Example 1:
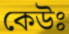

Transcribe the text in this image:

কেউঃ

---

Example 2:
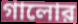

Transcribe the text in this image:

গালোর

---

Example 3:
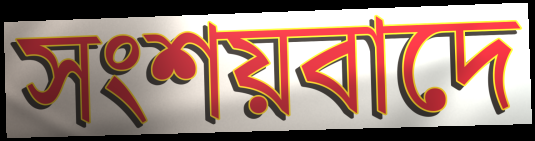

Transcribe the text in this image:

সংশয়বাদে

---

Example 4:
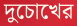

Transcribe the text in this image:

দুচোখের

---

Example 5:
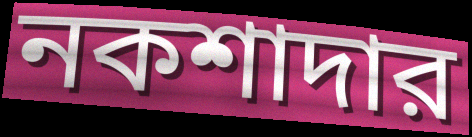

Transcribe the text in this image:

নকশাদার